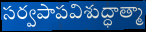
సర్వపాపవిశుద్ధాత్మా